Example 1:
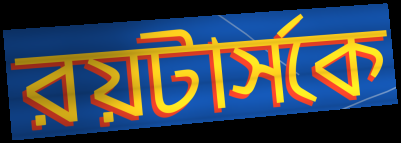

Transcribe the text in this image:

রয়টার্সকে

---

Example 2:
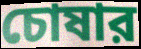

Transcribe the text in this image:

চোষার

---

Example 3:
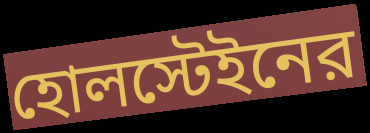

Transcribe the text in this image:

হোলস্টেইনের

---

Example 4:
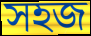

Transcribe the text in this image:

সহজ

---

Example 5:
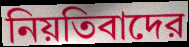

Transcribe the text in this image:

নিয়তিবাদের